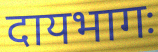
दायभागः